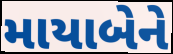
માયાબેને